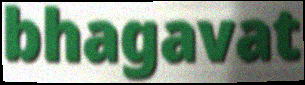
bhagavat